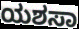
ಯಶಸಾ